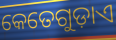
କେତେଗୁଡ଼ାଏ